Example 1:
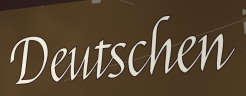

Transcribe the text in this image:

Deutschen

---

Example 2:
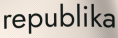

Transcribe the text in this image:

republika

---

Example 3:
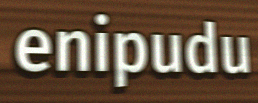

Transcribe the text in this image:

enipudu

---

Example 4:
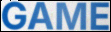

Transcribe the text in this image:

GAME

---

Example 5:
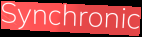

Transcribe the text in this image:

Synchronic